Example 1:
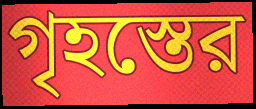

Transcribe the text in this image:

গৃহস্তের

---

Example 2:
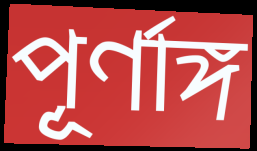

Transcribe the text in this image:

পূর্ণাঙ্গ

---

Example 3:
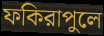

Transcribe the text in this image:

ফকিরাপুলে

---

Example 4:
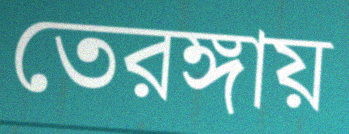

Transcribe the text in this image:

তেরঙ্গায়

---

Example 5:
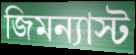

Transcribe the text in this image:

জিমন্যাস্ট